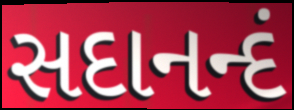
સદાનન્દં